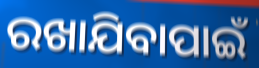
ରଖାଯିବାପାଇଁ